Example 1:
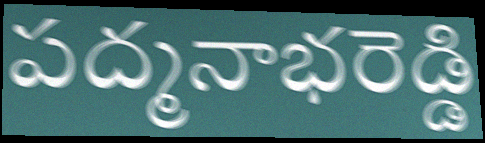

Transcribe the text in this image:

పద్మనాభరెడ్డి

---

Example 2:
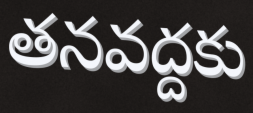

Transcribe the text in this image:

తనవద్దకు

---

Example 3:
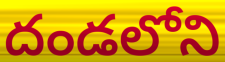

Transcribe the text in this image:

దండలోని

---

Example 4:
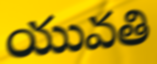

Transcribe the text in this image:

యువతి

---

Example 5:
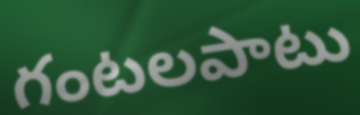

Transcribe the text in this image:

గంటలపాటు